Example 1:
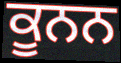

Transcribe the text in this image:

ਕੂਨਨ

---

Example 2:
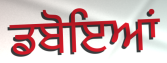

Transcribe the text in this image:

ਡਬੋਇਆਂ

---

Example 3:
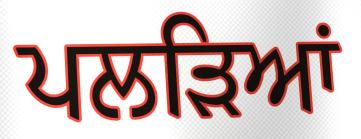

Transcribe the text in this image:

ਪਲੜਿਆਂ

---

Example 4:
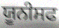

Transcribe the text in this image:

ਯੂਨੀਸਫ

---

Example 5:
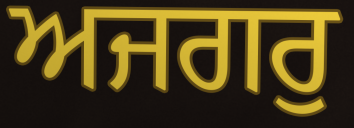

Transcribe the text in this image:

ਅਜਗਰੁ